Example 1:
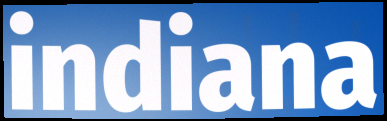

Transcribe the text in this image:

indiana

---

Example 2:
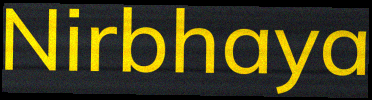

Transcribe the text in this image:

Nirbhaya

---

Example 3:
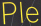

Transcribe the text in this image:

Ple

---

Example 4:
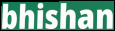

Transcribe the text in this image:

bhishan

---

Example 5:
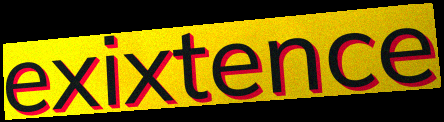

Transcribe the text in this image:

exixtence